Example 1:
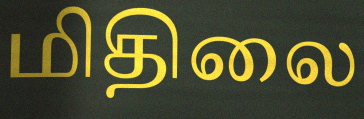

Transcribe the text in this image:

மிதிலை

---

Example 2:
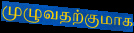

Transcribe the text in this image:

முழுவதற்குமாக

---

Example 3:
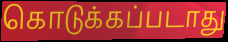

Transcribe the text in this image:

கொடுக்கப்படாது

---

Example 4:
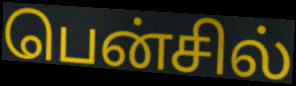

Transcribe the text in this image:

பென்சில்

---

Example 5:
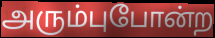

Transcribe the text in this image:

அரும்புபோன்ற